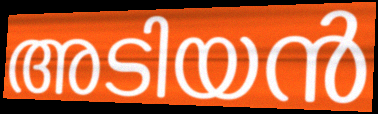
അടിയൻ